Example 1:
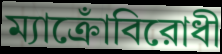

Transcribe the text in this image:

ম্যাক্রোঁবিরোধী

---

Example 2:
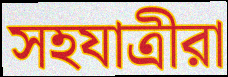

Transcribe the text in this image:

সহযাত্রীরা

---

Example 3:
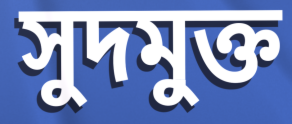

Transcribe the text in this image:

সুদমুক্ত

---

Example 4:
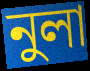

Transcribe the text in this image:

নুলা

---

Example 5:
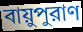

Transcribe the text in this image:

বায়ুপুরাণ